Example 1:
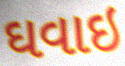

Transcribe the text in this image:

ઘવાઇ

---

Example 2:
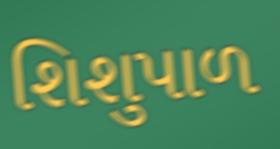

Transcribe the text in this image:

શિશુપાળ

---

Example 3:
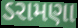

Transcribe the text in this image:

ડરામણા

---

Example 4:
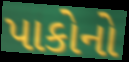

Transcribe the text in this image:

પાકોનો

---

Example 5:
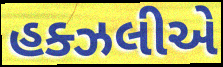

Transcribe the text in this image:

હક્ઝલીએ